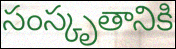
సంస్కృతానికి